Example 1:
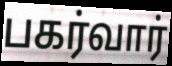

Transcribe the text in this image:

பகர்வார்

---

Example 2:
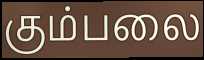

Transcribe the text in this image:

கும்பலை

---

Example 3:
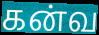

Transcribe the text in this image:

கன்வ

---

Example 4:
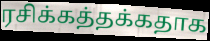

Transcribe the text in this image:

ரசிக்கத்தக்கதாக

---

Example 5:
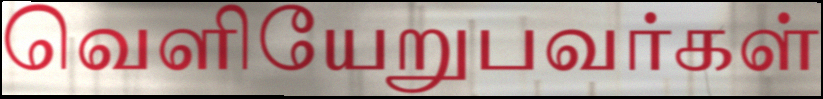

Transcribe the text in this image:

வெளியேறுபவர்கள்